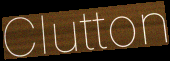
Clutton